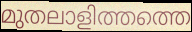
മുതലാളിത്തത്തെ